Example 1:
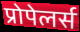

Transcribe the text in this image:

प्रोपेलर्स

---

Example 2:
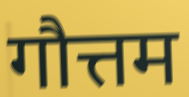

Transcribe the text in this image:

गौत्तम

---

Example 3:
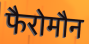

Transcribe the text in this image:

फैरोमौन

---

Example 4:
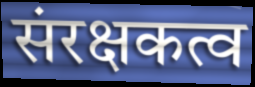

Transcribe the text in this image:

संरक्षकत्व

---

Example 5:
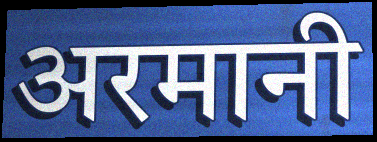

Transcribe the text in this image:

अरमानी